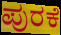
ಪುರಕೆ